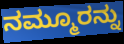
ನಮ್ಮೂರನ್ನು